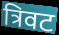
त्रिवट